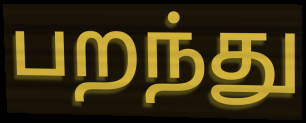
பறந்து